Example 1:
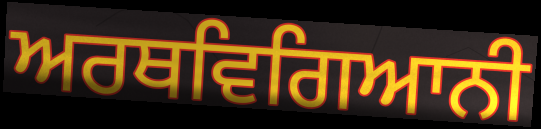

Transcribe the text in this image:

ਅਰਥਵਿਗਿਆਨੀ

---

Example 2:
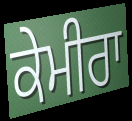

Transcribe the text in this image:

ਕੇਮੀਰਾ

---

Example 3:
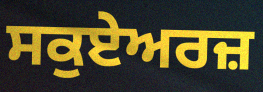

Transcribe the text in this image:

ਸਕੁਏਅਰਜ਼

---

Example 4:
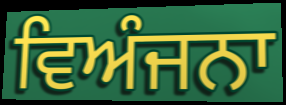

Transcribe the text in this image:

ਵਿਅੰਜਨਾ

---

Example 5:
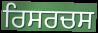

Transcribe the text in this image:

ਰਿਸਰਚਸ